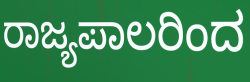
ರಾಜ್ಯಪಾಲರಿಂದ